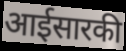
आईसारकी